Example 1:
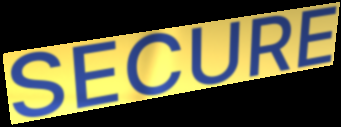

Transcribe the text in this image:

SECURE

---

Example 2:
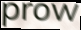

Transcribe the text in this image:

prow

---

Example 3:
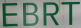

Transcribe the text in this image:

EBRT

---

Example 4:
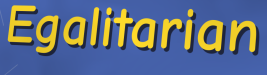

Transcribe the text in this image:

Egalitarian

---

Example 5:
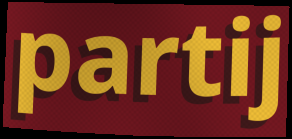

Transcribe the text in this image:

partij